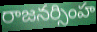
రాజనర్సింహ